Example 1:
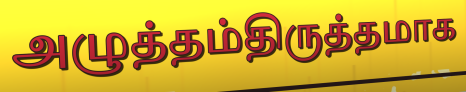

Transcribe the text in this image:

அழுத்தம்திருத்தமாக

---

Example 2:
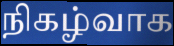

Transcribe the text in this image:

நிகழ்வாக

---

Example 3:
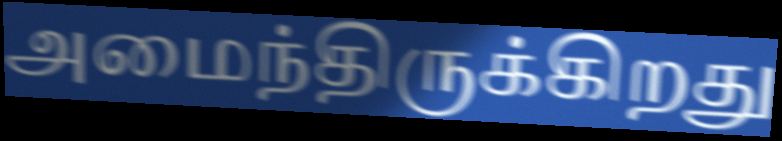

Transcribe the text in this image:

அமைந்திருக்கிறது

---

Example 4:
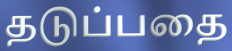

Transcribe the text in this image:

தடுப்பதை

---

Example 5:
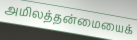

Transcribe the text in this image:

அமிலத்தன்மையைக்